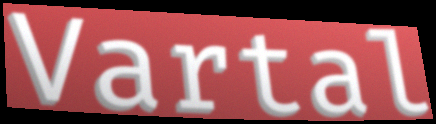
Vartal